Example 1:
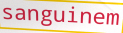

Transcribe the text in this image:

sanguinem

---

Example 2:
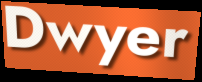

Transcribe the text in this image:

Dwyer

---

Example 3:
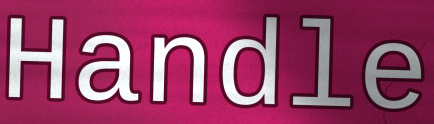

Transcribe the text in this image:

Handle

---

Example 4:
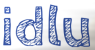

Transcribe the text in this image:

idlu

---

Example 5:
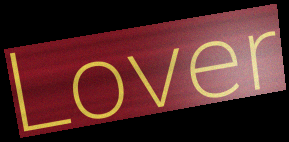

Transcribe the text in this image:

Lover